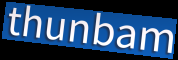
thunbam